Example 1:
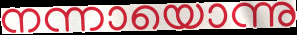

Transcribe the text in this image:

നന്നായൊന്നു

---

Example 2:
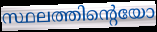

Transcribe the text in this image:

സ്ഥലത്തിന്റെയോ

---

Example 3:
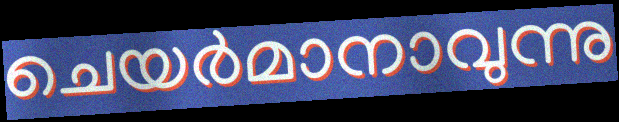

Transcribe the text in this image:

ചെയർമാനാവുന്നു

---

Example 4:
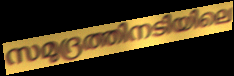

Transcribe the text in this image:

സമുദ്രത്തിനടിയിലെ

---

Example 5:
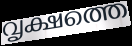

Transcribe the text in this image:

വൃക്ഷത്തെ